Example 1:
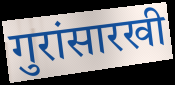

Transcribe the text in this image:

गुरांसारखी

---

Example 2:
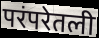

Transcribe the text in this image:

परंपरेतली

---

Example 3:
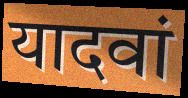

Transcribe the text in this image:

यादवां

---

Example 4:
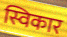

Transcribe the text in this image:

स्विकार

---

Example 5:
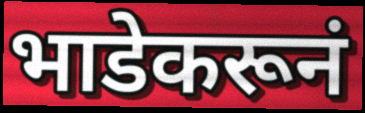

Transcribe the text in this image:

भाडेकरूनं